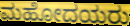
ಮಹೋದಯರು